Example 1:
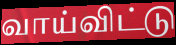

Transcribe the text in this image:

வாய்விட்டு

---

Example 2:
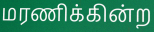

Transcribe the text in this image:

மரணிக்கின்ற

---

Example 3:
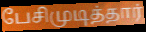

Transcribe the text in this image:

பேசிமுடித்தார்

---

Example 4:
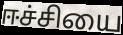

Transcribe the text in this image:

ஈச்சியை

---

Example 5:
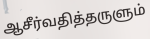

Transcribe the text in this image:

ஆசீர்வதித்தருளும்